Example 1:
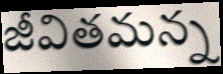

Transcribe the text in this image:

జీవితమన్న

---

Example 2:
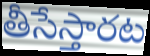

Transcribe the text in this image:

తీసేస్తారట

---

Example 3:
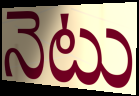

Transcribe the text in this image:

నెటు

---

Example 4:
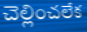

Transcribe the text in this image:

చెల్లించలేక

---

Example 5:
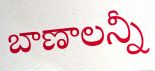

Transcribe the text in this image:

బాణాలన్నీ